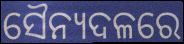
ସୈନ୍ୟଦଳରେ